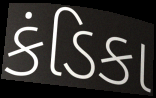
કંડિકા